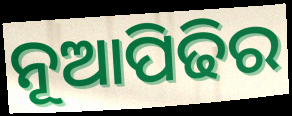
ନୂଆପିଢିର